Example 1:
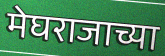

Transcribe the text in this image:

मेघराजाच्या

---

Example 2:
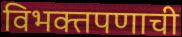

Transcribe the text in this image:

विभक्तपणाची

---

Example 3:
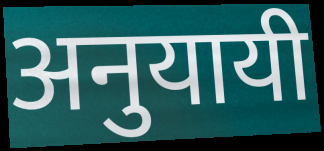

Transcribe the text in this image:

अनुयायी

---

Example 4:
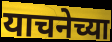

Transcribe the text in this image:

याचनेच्या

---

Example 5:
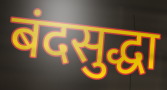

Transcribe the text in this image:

बंदसुद्धा